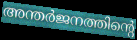
അന്തർജനത്തിന്റെ